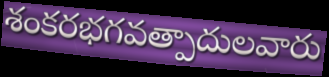
శంకరభగవత్పాదులవారు